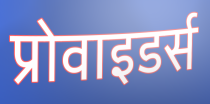
प्रोवाइडर्स